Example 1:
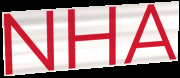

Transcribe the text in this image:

NHA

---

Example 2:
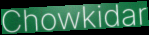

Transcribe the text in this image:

Chowkidar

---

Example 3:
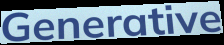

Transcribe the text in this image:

Generative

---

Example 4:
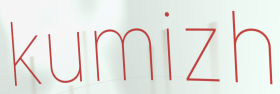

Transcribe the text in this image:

kumizh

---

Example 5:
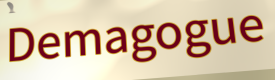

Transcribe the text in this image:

Demagogue